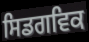
ਸਿਡਗਵਿਕ